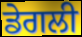
ਡੇਗਲੀ